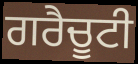
ਗਰੈਚੂਟੀ